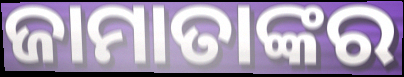
ଜାମାତାଙ୍କର